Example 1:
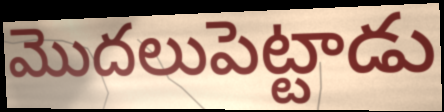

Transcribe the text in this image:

మొదలుపెట్టాడు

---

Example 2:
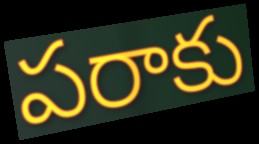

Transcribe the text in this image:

పరాకు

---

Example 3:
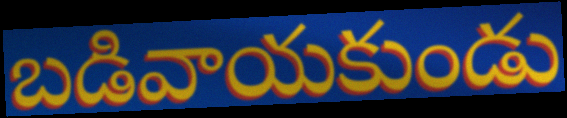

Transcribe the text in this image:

బడివాయకుండు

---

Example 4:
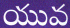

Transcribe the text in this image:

యువ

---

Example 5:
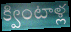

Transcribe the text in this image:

క్వింటాళ్ల